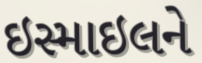
ઇસ્માઇલને